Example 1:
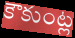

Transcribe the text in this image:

కౌకుంట్ల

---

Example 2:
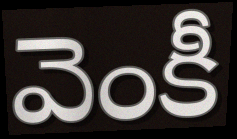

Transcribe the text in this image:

వెంకీ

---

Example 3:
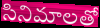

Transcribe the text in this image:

సినిమాలతో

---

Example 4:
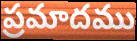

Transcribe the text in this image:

ప్రమాదము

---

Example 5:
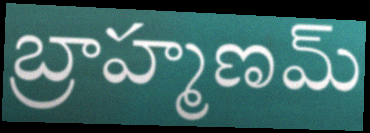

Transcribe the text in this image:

బ్రాహ్మణమ్